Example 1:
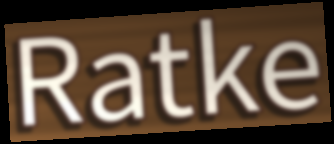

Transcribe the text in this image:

Ratke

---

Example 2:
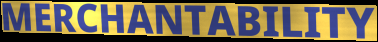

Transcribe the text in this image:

MERCHANTABILITY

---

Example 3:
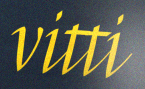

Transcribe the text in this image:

vitti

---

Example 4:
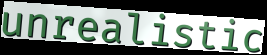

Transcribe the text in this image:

unrealistic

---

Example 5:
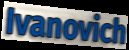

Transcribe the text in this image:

Ivanovich